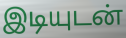
இடியுடன்